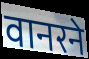
वानरने